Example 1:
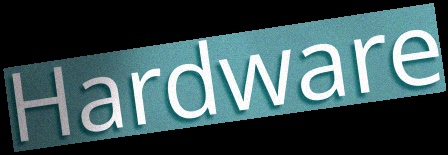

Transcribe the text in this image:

Hardware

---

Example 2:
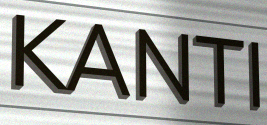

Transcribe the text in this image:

KANTI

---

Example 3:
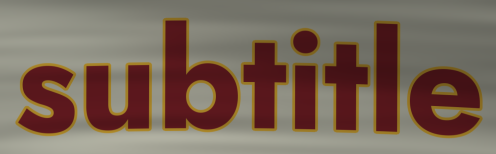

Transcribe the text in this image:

subtitle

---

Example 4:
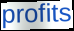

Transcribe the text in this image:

profits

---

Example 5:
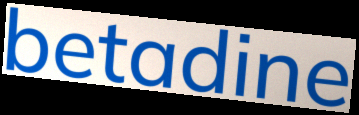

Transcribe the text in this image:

betadine